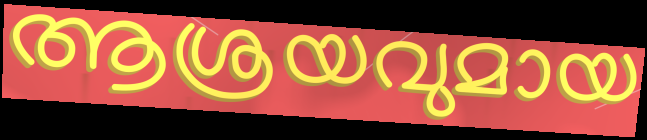
ആശ്രയവുമായ